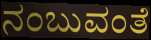
ನಂಬುವಂತೆ